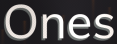
Ones